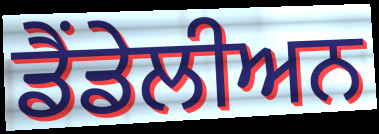
ਡੈਂਡੇਲੀਅਨ